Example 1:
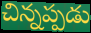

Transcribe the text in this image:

చిన్నప్పడు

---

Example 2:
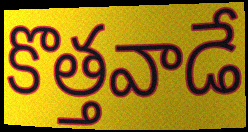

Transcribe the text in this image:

కొత్తవాడే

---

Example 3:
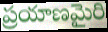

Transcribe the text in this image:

ప్రయాణమైరి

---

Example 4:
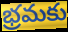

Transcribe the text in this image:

భ్రమకు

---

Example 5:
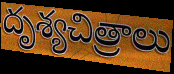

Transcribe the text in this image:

దృశ్యచిత్రాలు